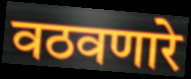
वठवणारे